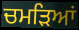
ਚਮੜਿਆਂ